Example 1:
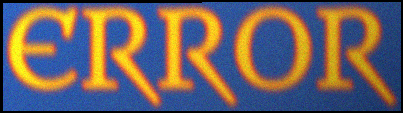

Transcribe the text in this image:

ERROR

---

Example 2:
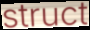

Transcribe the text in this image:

struct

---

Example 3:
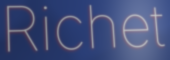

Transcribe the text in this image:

Richet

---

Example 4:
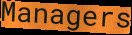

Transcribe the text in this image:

Managers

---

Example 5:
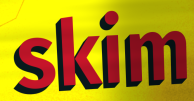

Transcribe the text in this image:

skim